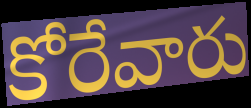
కోరేవారు